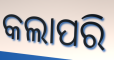
କଲାପରି